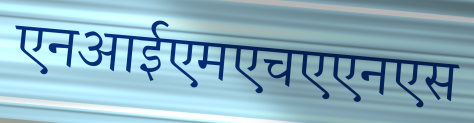
एनआईएमएचएएनएस